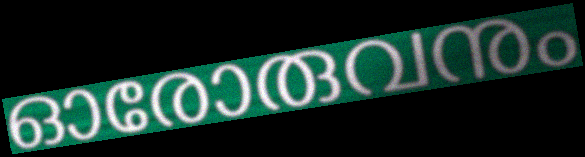
ഓരോരുവനും